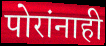
पोरांनाही